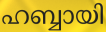
ഹബ്ബായി